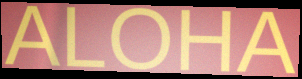
ALOHA